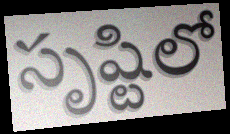
సృష్టిలో